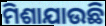
ମିଶାଯାଉଛି